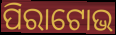
ପିରାଟୋଭ